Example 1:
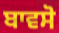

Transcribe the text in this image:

ਬਾਵਸੋ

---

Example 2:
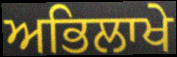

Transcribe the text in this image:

ਅਭਿਲਾਖੇ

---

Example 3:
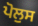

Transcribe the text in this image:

ਪੋਲੁਸ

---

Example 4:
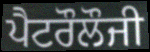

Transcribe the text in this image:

ਪੈਟਰੌਲੌਜੀ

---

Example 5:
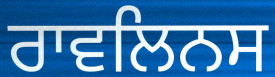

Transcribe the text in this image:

ਰਾਵਲਿਨਸ